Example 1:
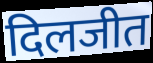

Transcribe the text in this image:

दिलजीत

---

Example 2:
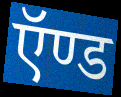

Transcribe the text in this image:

ऍण्ड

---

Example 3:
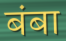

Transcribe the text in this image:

बंबा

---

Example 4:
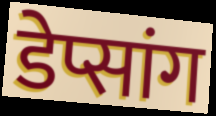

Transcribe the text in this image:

डेप्सांग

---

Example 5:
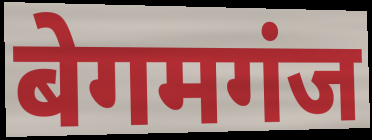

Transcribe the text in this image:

बेगमगंज